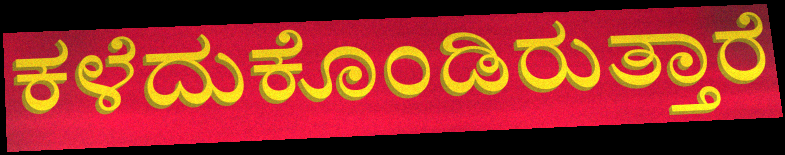
ಕಳೆದುಕೊಂಡಿರುತ್ತಾರೆ